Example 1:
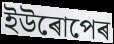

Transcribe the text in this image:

ইউৰোপেৰ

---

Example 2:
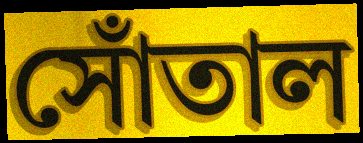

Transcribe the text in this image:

সোঁতাল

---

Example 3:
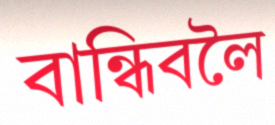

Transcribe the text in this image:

বান্ধিবলৈ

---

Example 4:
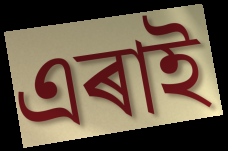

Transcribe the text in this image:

এৰাই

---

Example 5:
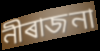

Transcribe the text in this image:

নীৰাজনা